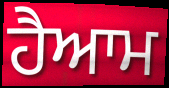
ਹੈਆਮ